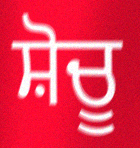
ਸ਼ੋਚੂ